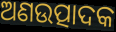
ଅଣଉତ୍ପାଦକ